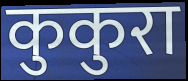
कुकुरा